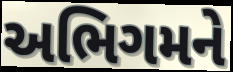
અભિગમને